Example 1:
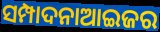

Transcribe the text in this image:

ସମ୍ପାଦନାଆଇଜର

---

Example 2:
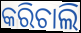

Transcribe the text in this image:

କରିଚାଲି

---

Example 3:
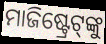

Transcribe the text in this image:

ମାଜିଷ୍ଟ୍ରେଟ୍‌ଙ୍କୁ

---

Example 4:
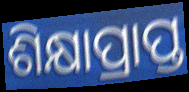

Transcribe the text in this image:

ଶିକ୍ଷାପ୍ରାପ୍ତ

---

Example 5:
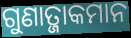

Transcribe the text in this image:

ଗୁଣାତ୍ଜାକମାନ